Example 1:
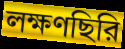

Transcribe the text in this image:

লক্ষণছিরি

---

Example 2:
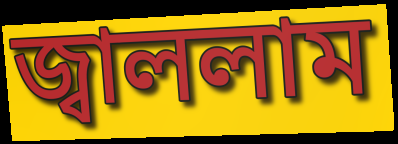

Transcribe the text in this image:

জ্বাললাম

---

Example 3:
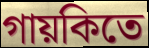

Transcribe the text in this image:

গায়কিতে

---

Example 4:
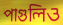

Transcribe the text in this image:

পাগুলিও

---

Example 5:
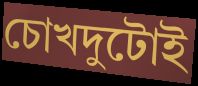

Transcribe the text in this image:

চোখদুটোই